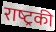
राष्ट्रकी